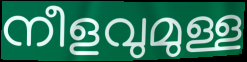
നീളവുമുള്ള